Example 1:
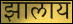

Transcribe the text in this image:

झालाय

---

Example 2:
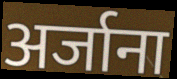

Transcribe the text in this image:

अर्जाना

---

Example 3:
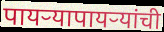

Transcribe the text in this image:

पायऱ्यापायऱ्यांची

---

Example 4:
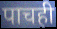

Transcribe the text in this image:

पाचही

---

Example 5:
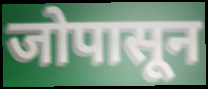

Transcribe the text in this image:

जोपासून